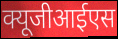
क्यूजीआईएस